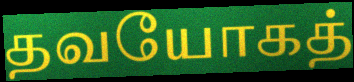
தவயோகத்